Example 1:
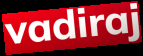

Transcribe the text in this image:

vadiraj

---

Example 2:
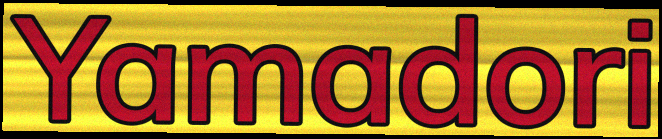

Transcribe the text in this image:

Yamadori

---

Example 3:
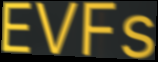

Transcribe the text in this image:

EVFs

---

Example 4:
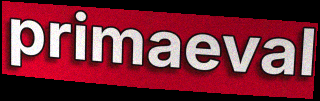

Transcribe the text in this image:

primaeval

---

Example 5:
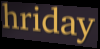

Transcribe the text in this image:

hriday